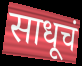
साधूचं